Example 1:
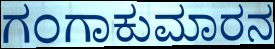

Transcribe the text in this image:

ಗಂಗಾಕುಮಾರನ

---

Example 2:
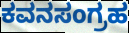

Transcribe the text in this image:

ಕವನಸಂಗ್ರಹ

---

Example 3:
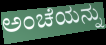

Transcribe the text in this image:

ಅಂಚೆಯನ್ನು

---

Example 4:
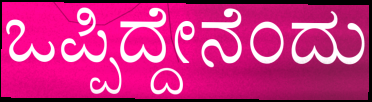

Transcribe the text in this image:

ಒಪ್ಪಿದ್ದೇನೆಂದು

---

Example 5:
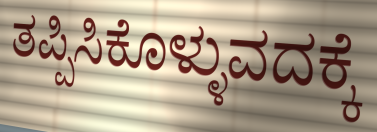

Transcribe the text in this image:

ತಪ್ಪಿಸಿಕೊಳ್ಳುವದಕ್ಕೆ